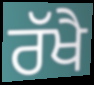
ਰੱਖੈ